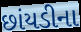
છાંયડીના